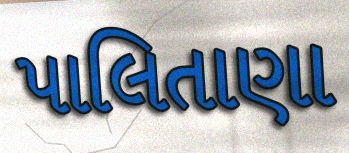
પાલિતાણા